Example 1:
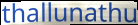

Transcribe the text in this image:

thallunathu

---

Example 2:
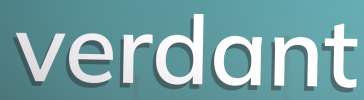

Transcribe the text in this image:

verdant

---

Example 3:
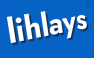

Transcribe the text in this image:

lihlays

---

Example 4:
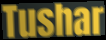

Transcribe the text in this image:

Tushar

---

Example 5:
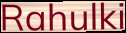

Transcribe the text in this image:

Rahulki